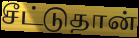
சீட்டுதான்